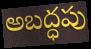
అబద్ధపు